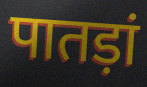
पातड़ां